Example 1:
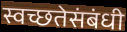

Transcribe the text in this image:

स्वच्छतेसंबंधी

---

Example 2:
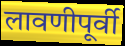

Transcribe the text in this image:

लावणीपूर्वी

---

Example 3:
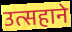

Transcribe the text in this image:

उत्सहाने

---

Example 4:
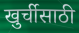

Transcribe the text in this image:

खुर्चीसाठी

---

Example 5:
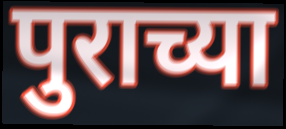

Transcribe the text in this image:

पुराच्या